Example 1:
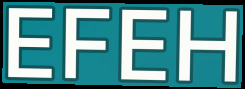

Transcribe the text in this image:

EFEH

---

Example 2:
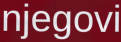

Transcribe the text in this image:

njegovi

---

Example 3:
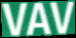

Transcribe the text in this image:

VAV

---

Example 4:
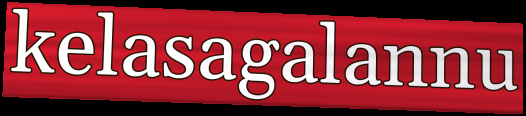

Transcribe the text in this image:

kelasagalannu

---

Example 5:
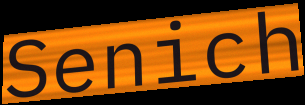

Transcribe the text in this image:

Senich